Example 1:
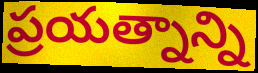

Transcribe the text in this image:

ప్రయత్నాన్ని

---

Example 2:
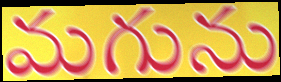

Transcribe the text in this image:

మగును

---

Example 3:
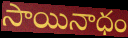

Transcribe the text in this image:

సాయినాధం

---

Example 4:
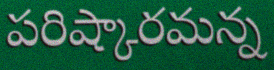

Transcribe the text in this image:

పరిష్కారమన్న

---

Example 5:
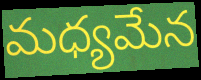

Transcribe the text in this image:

మధ్యమేన